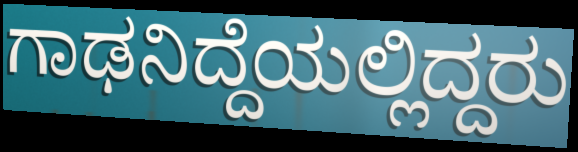
ಗಾಢನಿದ್ದೆಯಲ್ಲಿದ್ದರು